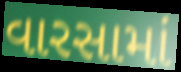
વારસામાં